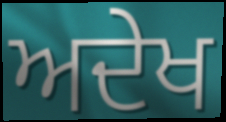
ਅਦੇਖ